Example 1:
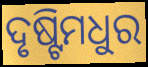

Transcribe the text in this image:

ଦୃଷ୍ଟିମଧୁର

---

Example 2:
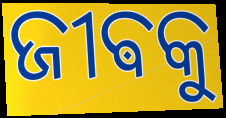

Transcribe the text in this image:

ଜୀଵକୁ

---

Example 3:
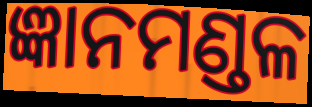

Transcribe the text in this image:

ଜ୍ଞାନମଣ୍ଡଳ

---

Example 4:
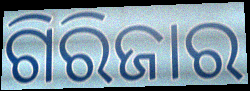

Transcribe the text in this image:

ଗିରିଜାର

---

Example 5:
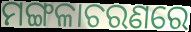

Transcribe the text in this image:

ମଙ୍ଗଳାଚରଣରେ